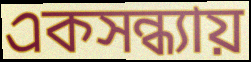
একসন্ধ্যায়